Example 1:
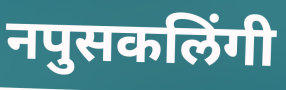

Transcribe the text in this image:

नपुसकलिंगी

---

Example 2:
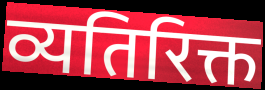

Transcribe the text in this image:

व्यतिरिक्त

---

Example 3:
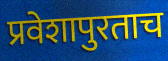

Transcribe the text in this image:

प्रवेशापुरताच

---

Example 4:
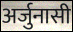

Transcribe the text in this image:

अर्जुनासी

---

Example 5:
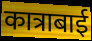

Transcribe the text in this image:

कात्राबाई